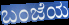
ಬಂಜೆಯ